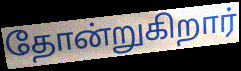
தோன்றுகிறார்